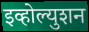
इव्होल्युशन